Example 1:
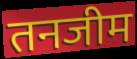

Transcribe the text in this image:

तनजीम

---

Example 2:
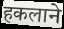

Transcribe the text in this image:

हकलाने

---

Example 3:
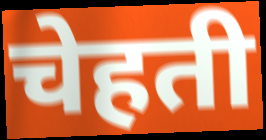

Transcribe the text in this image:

चेहती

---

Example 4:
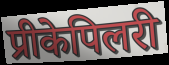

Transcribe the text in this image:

प्रीकेपिलरी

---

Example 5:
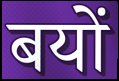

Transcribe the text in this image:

बयों